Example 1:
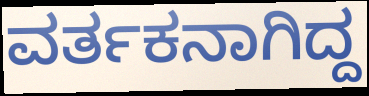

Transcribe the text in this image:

ವರ್ತಕನಾಗಿದ್ದ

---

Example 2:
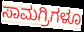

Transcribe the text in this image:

ಸಾಮಗ್ರಿಗಳೂ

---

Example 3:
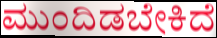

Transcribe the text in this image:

ಮುಂದಿಡಬೇಕಿದೆ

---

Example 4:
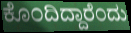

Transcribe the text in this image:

ಕೊಂದಿದ್ದಾರೆಂದು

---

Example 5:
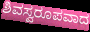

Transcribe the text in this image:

ಶಿವಸ್ವರೂಪವಾದ